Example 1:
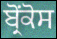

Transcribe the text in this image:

ਬ੍ਰੋਂਕੋਸ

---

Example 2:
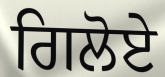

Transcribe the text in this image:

ਗਿਲੋਏ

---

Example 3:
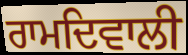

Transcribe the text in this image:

ਰਾਮਦਿਵਾਲੀ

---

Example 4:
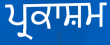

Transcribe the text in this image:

ਪ੍ਰਕਾਸ਼ਮ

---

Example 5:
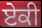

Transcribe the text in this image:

ਏਕੀ